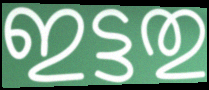
ഇട്ടതു